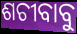
ଶଚୀବାବୁ